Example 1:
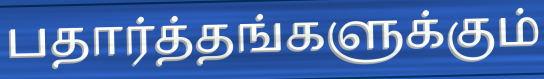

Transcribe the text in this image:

பதார்த்தங்களுக்கும்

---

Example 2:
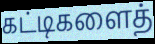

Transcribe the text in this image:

கட்டிகளைத்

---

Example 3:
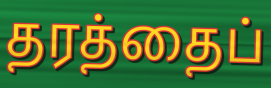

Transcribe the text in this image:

தரத்தைப்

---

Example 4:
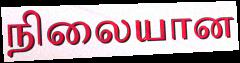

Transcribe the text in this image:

நிலையான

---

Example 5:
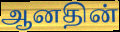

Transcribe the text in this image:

ஆனதின்